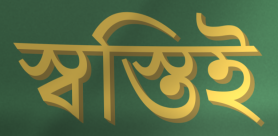
স্বস্তিই